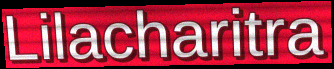
Lilacharitra